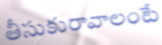
తీసుకురావాలంటే